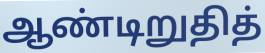
ஆண்டிறுதித்